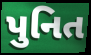
પુનિત